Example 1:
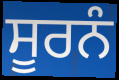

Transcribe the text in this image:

ਸੂਰਨੰ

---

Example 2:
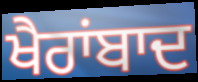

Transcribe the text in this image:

ਖੈਰਾਂਬਾਦ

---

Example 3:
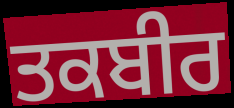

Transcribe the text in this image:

ਤਕਬੀਰ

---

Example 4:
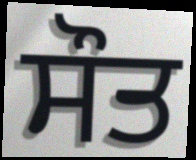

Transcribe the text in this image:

ਸੌਤ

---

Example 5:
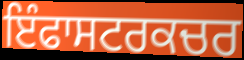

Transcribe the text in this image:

ਇੰਫਾਸਟਰਕਚਰ